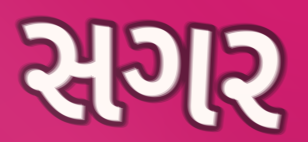
સગર